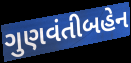
ગુણવંતીબહેન